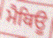
ਮੈਥਿਊ